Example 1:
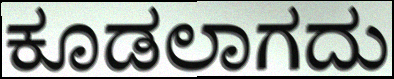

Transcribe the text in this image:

ಕೂಡಲಾಗದು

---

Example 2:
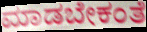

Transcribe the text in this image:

ಮಾಡಬೇಕಂತೆ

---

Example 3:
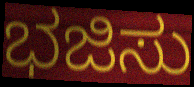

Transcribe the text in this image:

ಭಜಿಸು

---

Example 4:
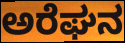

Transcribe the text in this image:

ಅರೆಘನ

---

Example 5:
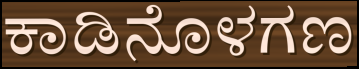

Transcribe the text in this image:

ಕಾಡಿನೊಳಗಣ